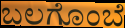
ಬಲಗೊಂಬೆ